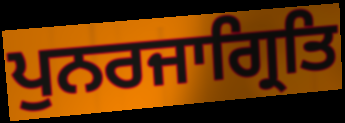
ਪੁਨਰਜਾਗ੍ਰਿਤਿ